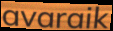
avaraik